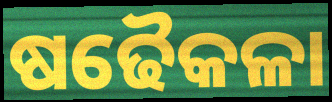
ଷଢୈକଳା